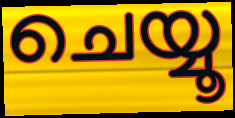
ചെയ്യൂ